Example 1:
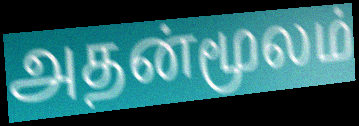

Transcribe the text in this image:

அதன்மூலம்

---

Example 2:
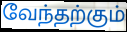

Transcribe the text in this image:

வேந்தற்கும்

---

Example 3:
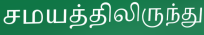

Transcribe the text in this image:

சமயத்திலிருந்து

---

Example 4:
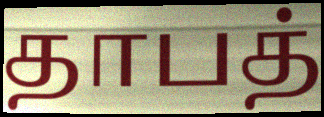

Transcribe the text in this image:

தாபத்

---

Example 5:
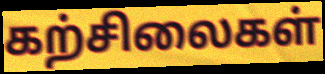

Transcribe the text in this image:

கற்சிலைகள்